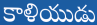
కాళియుడు